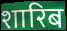
शारिब